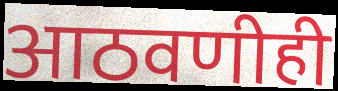
आठवणीही